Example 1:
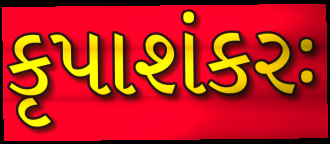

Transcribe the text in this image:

કૃપાશંકરઃ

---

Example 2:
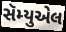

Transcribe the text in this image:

સૅમ્યુએલ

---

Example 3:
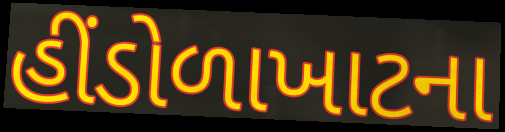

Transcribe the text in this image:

હીંડોળાખાટના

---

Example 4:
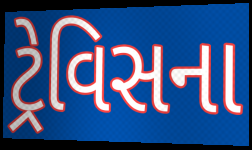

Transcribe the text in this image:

ટ્રેવિસના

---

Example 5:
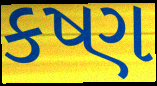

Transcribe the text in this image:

કષ્ણ